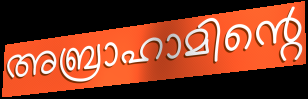
അബ്രാഹാമിന്റെ